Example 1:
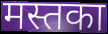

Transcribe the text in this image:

मस्तका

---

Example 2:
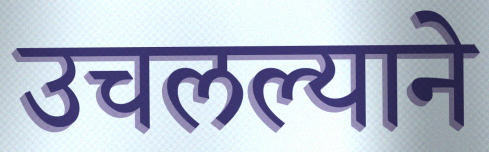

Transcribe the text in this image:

उचलल्याने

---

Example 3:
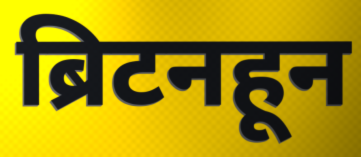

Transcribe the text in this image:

ब्रिटनहून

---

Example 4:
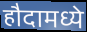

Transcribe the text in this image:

हौदामध्ये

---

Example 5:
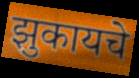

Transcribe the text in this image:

झुकायचे